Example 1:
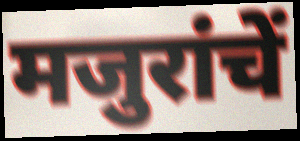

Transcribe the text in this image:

मजुरांचें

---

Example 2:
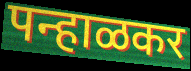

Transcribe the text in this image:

पन्हाळकर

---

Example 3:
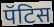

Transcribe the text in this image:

पॅटिस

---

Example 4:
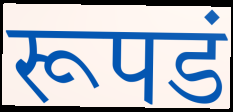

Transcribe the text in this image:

रूपडं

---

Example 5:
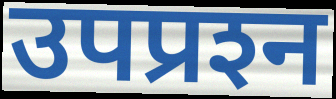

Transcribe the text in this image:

उपप्रश्‍न